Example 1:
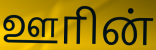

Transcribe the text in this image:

ஊரின்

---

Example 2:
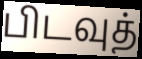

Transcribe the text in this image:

பிடவுத்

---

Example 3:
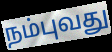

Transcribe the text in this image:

நம்புவது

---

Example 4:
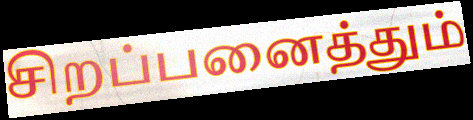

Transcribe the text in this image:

சிறப்பனைத்தும்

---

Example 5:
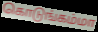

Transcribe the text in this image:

கொடுங்கம்மா